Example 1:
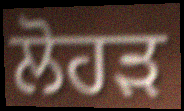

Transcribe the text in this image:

ਲੋਹੜ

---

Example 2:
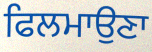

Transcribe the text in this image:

ਫਿਲਮਾਉਣਾ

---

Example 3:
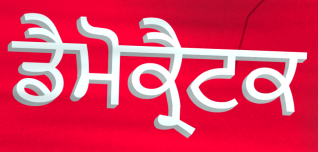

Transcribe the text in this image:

ਡੈਮੋਕ੍ਰੈਟਕ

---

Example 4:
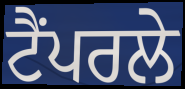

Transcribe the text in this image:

ਟੈਂਪਰਲੇ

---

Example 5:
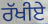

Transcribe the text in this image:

ਰੱਖੀਏ